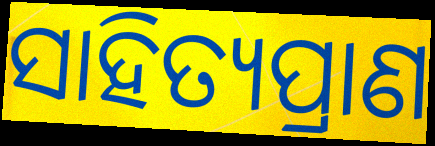
ସାହିତ୍ୟପ୍ରାଣ